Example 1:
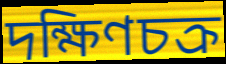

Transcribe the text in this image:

দক্ষিণচক্র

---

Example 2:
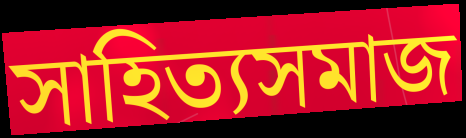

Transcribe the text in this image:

সাহিত্যসমাজ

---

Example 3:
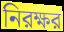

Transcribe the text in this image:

নিরক্ষর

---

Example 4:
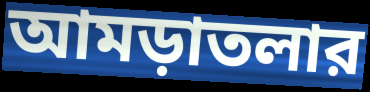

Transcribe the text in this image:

আমড়াতলার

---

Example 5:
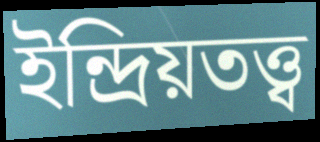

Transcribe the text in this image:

ইন্দ্রিয়তত্ত্ব